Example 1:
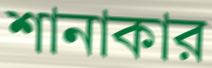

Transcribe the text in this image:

শানাকার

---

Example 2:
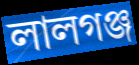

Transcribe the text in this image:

লালগঞ্জ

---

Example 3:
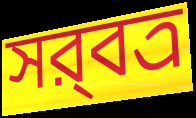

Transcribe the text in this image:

সর্‍বত্র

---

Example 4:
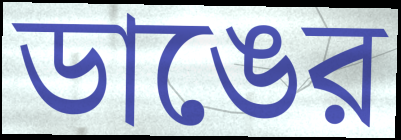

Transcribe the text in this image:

ডাঙের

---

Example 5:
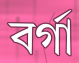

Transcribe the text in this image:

বর্গা